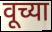
वूच्या